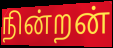
நின்றன்